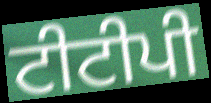
ਟੀਟੀਪੀ